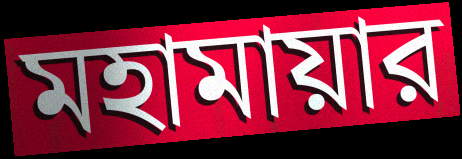
মহামায়ার